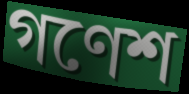
গণেশ